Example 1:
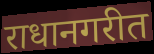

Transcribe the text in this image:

राधानगरीत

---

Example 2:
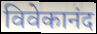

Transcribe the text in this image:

विवेकानंद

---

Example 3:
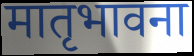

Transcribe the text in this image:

मातृभावना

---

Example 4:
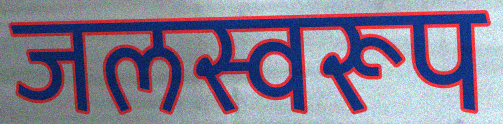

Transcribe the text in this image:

जलस्वरूप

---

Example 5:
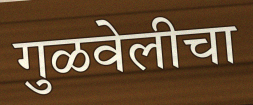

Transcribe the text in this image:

गुळवेलीचा